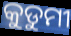
କୁଡୁମୀ